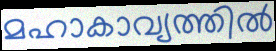
മഹാകാവ്യത്തിൽ